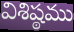
విశిష్ఠము